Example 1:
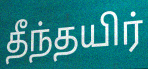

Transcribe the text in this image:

தீந்தயிர்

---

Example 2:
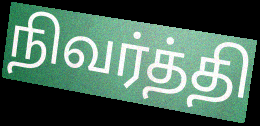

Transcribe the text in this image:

நிவர்த்தி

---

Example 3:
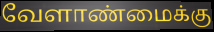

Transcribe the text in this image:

வேளாண்மைக்கு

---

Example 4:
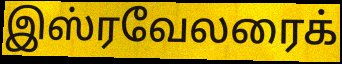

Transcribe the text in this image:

இஸ்ரவேலரைக்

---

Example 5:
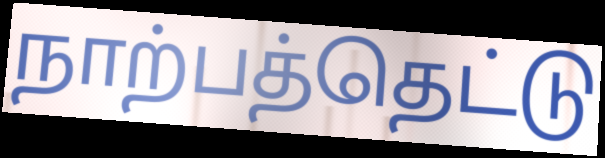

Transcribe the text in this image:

நாற்பத்தெட்டு